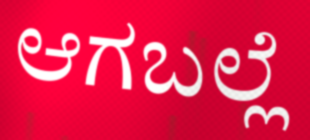
ಆಗಬಲ್ಲೆ